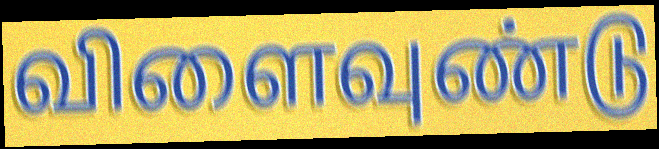
விளைவுண்டு